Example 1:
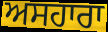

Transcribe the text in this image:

ਅਸਹਾਰਾ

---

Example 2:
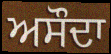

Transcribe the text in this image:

ਅਸੌਦਾ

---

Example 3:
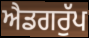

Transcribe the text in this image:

ਐਡਗਰੁੱਪ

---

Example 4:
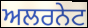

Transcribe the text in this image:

ਅਲਰਨੇਟ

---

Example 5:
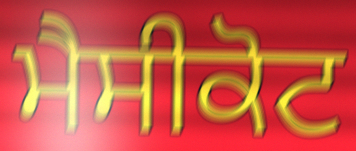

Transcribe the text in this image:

ਮੈਸੀਕੋਟ